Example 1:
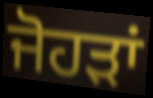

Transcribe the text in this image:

ਜੋਹੜਾਂ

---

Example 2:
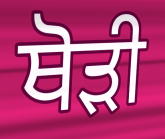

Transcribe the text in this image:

ਥੋੜੀ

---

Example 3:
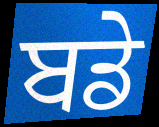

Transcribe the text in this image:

ਬਡੇ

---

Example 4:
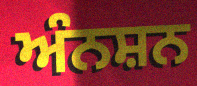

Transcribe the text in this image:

ਅੰਨਸ਼ਨ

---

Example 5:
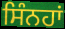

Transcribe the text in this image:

ਸਿੰਨਹਾਂ